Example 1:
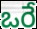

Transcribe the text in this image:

ఒరే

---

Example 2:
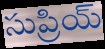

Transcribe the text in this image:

సుప్రియ్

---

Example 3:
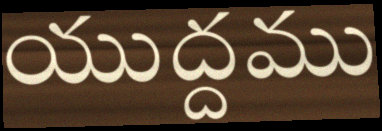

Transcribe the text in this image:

యుద్దము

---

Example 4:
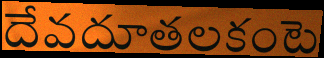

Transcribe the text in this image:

దేవదూతలకంటె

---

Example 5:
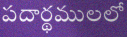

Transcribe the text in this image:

పదార్థములలో